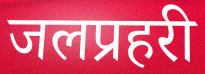
जलप्रहरी